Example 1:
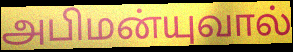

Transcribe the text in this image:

அபிமன்யுவால்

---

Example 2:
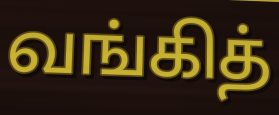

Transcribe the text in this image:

வங்கித்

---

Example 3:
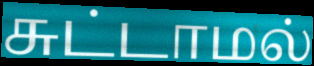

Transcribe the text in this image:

சுட்டாமல்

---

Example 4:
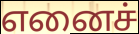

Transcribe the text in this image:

எனைச்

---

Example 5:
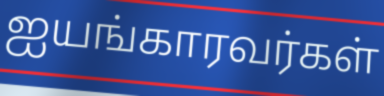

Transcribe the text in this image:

ஐயங்காரவர்கள்